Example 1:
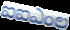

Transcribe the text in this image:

ఐఐఎంల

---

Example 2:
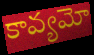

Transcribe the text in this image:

కావ్యమో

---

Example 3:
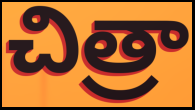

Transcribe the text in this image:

చిత్రా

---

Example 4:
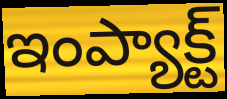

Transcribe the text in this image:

ఇంప్యాక్ట్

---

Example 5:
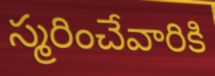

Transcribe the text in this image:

స్మరించేవారికి